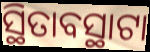
ସ୍ଥିତାବସ୍ଥାଟା